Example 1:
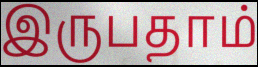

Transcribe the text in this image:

இருபதாம்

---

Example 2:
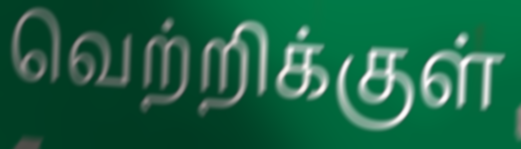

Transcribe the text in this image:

வெற்றிக்குள்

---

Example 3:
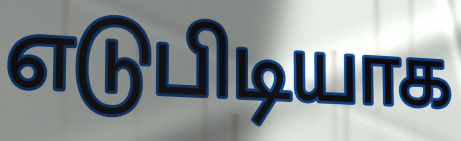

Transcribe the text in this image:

எடுபிடியாக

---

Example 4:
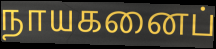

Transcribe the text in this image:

நாயகனைப்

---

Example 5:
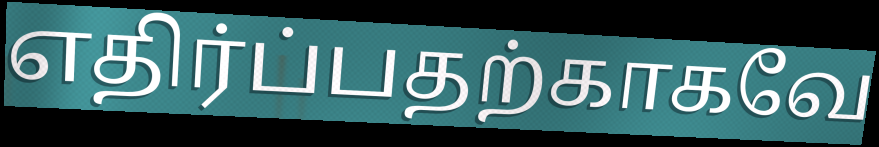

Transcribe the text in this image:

எதிர்ப்பதற்காகவே